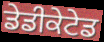
ਡੇਡੀਕੇਟੇਡ